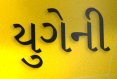
યુગેની